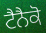
ਟੈਨੈਕੋ